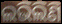
ଲଭିଲିଣି